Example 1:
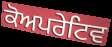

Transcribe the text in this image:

ਕੋਅਪਰੇਟਿਵ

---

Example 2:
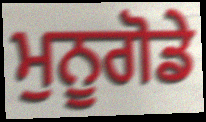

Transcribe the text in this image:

ਮੁਨੂਗੋਡੇ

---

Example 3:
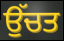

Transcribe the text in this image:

ਉੱਚਤ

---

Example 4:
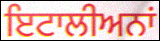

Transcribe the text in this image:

ਇਟਾਲੀਅਨਾਂ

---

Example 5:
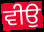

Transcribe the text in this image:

ਵੀਉ